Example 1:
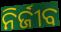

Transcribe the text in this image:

ନିର୍ଜୀବ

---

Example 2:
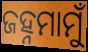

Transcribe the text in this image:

ଜହ୍ନମାମୁଁ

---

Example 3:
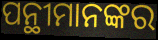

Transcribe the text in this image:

ପନ୍ଥୀମାନଙ୍କର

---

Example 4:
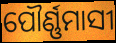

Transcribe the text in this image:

ପୌର୍ଣ୍ଣମାସୀ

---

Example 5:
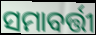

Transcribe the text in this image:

ସମାବର୍ତ୍ତୀ